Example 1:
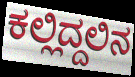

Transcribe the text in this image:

ಕಲ್ಲಿದ್ದಲಿನ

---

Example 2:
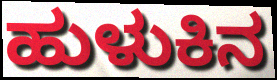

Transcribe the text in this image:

ಹುಳುಕಿನ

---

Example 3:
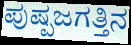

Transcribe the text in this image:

ಪುಷ್ಪಜಗತ್ತಿನ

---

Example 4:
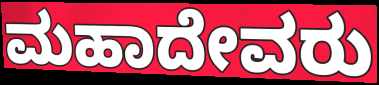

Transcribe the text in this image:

ಮಹಾದೇವರು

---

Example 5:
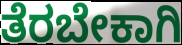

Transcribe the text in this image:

ತೆರಬೇಕಾಗಿ